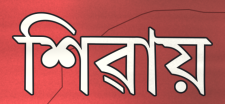
শিৱায়